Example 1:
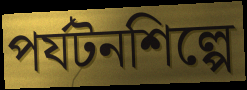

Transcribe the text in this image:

পর্যটনশিল্পে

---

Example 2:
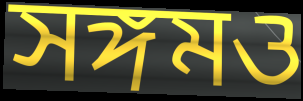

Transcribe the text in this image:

সঙ্গমও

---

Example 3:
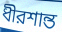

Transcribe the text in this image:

ধীরশান্ত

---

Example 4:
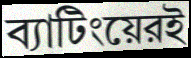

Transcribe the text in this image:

ব্যাটিংয়েরই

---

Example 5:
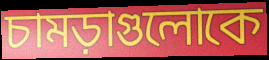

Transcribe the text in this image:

চামড়াগুলোকে